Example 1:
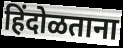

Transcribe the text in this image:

हिंदोळताना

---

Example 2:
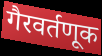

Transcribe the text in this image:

गैरवर्तणूक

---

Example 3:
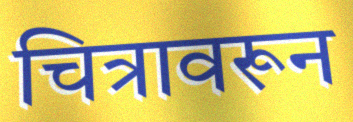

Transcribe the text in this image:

चित्रावरून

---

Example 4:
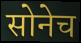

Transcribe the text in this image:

सोनेच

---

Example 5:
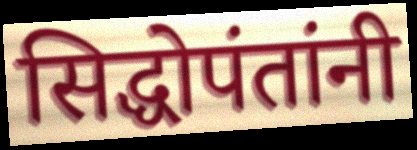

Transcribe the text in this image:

सिद्धोपंतांनी